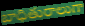
బాధితురాలుగా